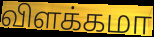
விளக்கமா